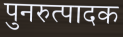
पुनरुत्पादक